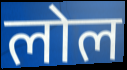
लोल